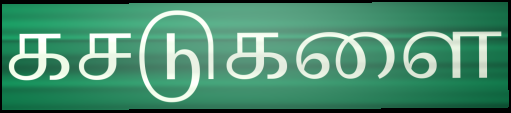
கசடுகளை